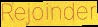
Rejoinder